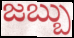
జబ్బు